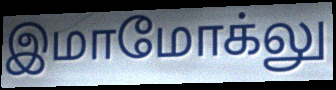
இமாமோக்லு